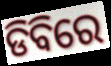
ଡିବିରେ